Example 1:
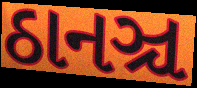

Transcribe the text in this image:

ઠાનઞ્ચ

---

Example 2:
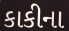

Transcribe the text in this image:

કાકીના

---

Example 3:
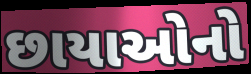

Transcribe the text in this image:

છાયાઓનો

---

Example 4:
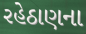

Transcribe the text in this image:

રહેઠાણના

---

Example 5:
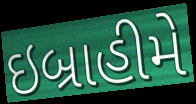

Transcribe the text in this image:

ઇબ્રાહીમે